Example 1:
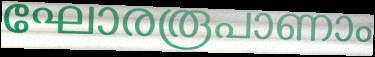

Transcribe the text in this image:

ഘോരരൂപാണാം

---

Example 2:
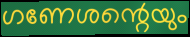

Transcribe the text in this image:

ഗണേശന്റെയും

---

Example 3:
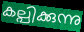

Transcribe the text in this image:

കല്പിക്കുന്നു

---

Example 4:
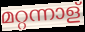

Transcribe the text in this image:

മറ്റന്നാള്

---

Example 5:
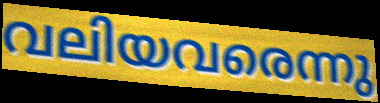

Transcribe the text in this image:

വലിയവരെന്നു